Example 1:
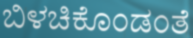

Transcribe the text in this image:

ಬಿಳಚಿಕೊಂಡಂತೆ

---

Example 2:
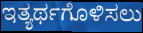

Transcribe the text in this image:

ಇತ್ಯರ್ಥಗೊಳಿಸಲು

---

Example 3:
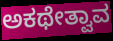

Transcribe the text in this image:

ಅಕಥೇತ್ವಾವ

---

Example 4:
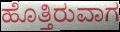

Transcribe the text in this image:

ಹೊತ್ತಿರುವಾಗ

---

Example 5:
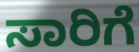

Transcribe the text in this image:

ಸಾರಿಗೆ